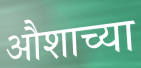
औशाच्या